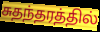
சுதந்தரத்தில்